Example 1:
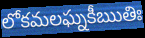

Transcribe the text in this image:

లోకమలఘ్నకీఋతిః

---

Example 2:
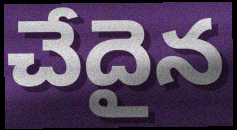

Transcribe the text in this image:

చేదైన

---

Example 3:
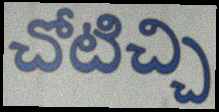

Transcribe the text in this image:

చోటిచ్చి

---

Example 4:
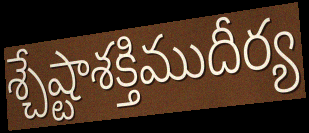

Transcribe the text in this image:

శ్చేష్టాశక్తిముదీర్య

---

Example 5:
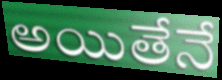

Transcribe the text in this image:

అయితేనే